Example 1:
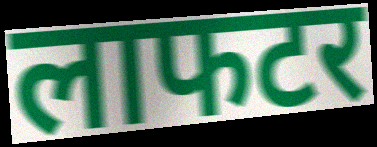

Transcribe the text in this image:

लाफटर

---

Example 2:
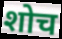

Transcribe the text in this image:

शोच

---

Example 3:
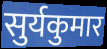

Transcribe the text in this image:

सुर्यकुमार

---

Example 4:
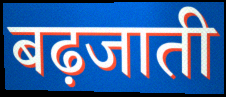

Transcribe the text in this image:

बढ़जाती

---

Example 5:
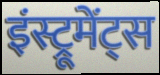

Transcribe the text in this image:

इंस्ट्रूमेंट्स